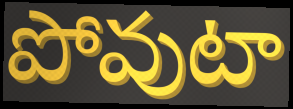
పోవుటా